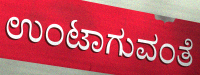
ಉಂಟಾಗುವಂತೆ